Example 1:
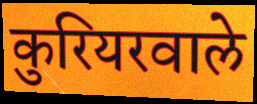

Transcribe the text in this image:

कुरियरवाले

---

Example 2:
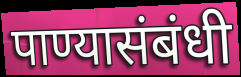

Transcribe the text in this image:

पाण्यासंबंधी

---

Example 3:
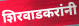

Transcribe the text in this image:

शिरवाडकरांनी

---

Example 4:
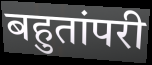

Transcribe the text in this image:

बहुतांपरी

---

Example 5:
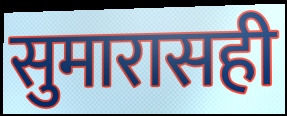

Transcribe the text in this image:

सुमारासही